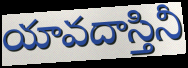
యావదాస్తినీ